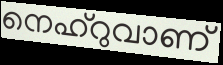
നെഹ്റുവാണ്